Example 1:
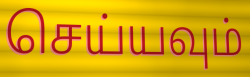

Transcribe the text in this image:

செய்யவும்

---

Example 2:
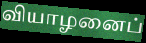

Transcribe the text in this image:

வியாழனைப்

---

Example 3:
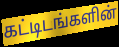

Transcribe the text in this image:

கட்டிடங்களின்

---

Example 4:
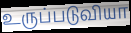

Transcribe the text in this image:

உருப்படுவியா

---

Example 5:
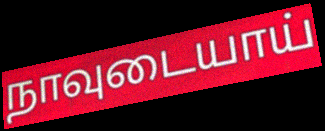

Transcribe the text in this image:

நாவுடையாய்